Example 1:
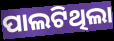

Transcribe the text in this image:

ପାଲଟିଥିଲା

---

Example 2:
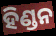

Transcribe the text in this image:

ହିଣ୍ଡନ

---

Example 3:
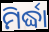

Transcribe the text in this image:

ମିର୍ଦ୍ଧା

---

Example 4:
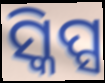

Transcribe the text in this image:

ସ୍କିପ୍ସ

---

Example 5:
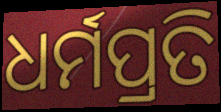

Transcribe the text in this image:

ଧର୍ମପ୍ରତି